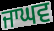
ਜਾਘਵ